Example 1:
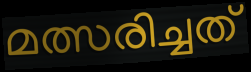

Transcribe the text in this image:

മത്സരിച്ചത്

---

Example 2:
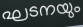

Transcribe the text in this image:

ഘടനയും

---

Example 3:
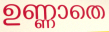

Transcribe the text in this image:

ഉണ്ണാതെ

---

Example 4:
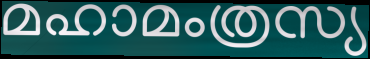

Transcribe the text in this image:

മഹാമംത്രസ്യ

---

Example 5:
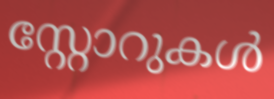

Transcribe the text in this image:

സ്റ്റോറുകൾ